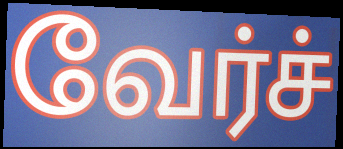
வேர்ச்